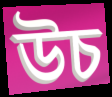
উচ